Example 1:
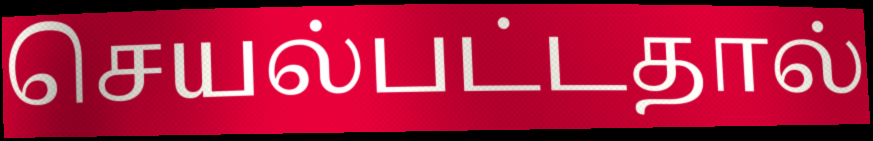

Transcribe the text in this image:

செயல்பட்டதால்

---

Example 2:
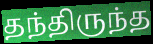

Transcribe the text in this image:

தந்திருந்த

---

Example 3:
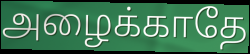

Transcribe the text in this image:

அழைக்காதே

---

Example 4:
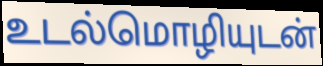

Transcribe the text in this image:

உடல்மொழியுடன்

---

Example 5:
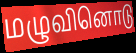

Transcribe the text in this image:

மழுவினொடு